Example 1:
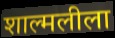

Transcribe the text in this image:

शाल्मलीला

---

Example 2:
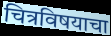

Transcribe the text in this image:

चित्रविषयाचा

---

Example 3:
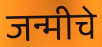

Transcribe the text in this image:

जन्मीचे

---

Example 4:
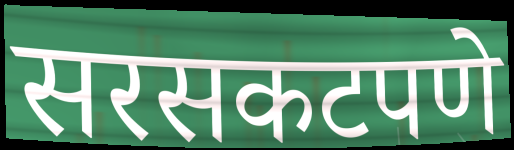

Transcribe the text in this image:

सरसकटपणे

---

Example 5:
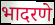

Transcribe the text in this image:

भादरणे